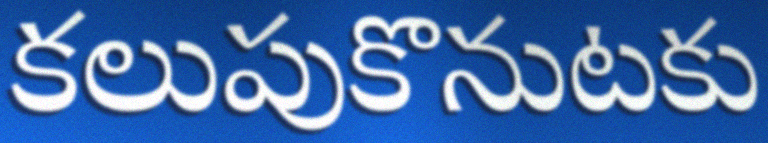
కలుపుకొనుటకు